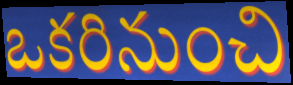
ఒకరినుంచి